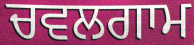
ਚਵਲਗਾਮ